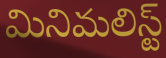
మినిమలిస్ట్